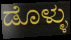
ಡೊಳ್ಳು